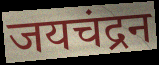
जयचंद्रन